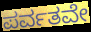
ಪರ್ವತವೇ